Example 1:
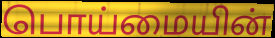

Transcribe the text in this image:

பொய்மையின்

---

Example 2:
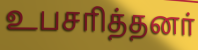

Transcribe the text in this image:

உபசரித்தனர்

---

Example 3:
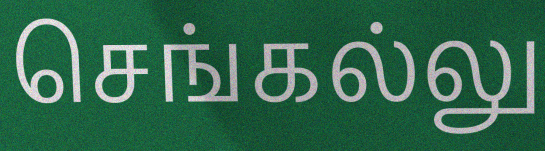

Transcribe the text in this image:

செங்கல்லு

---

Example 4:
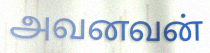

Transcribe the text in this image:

அவனவன்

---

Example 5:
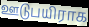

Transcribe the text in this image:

ஊடுபயிராக